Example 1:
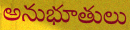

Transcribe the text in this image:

అనుభూతులు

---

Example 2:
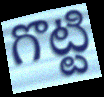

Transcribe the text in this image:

గొట్టి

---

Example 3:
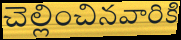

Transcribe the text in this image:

చెల్లించినవారికి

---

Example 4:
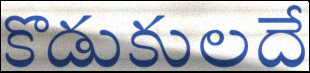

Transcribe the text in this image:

కొడుకులదే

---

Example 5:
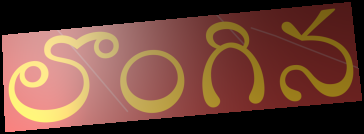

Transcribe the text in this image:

లొంగిన